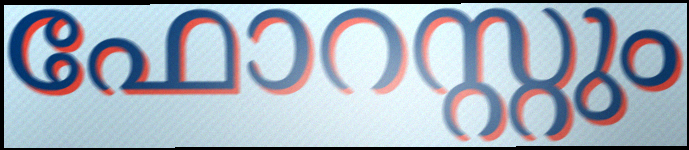
ഫോറസ്റ്റും